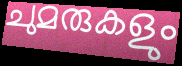
ചുമരുകളും